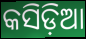
କସିଡ଼ିଆ